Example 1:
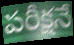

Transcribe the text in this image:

పరీక్షనే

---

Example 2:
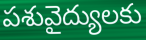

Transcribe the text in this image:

పశువైద్యులకు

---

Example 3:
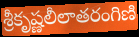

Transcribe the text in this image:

శ్రీకృష్ణలీలాతరంగిణి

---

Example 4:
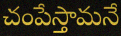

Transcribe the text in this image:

చంపేస్తామనే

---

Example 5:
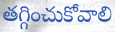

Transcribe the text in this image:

తగ్గించుకోవాలి